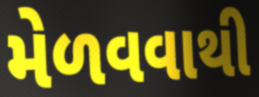
મેળવવાથી